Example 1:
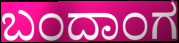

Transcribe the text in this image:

ಬಂದಾಂಗ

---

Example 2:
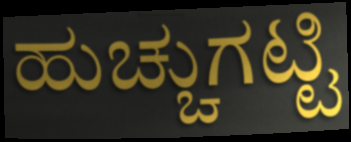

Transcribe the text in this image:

ಹುಚ್ಚುಗಟ್ಟಿ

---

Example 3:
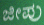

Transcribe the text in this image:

ಜೀಪು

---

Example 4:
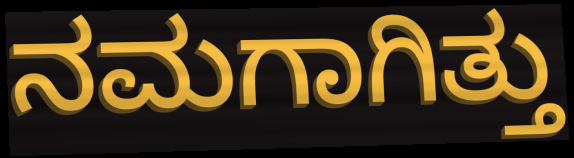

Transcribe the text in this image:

ನಮಗಾಗಿತ್ತು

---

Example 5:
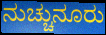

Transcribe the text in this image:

ನುಚ್ಚುನೂರು